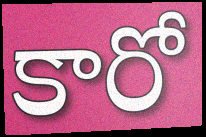
కారో